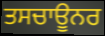
ਤਸਚਾਊਨਰ